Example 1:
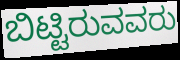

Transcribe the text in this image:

ಬಿಟ್ಟಿರುವವರು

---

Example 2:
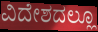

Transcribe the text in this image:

ವಿದೇಶದಲ್ಲೂ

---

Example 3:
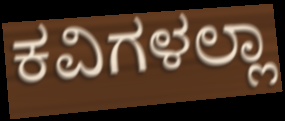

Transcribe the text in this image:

ಕವಿಗಳಲ್ಲಾ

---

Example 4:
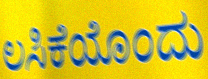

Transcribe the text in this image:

ಲಸಿಕೆಯೊಂದು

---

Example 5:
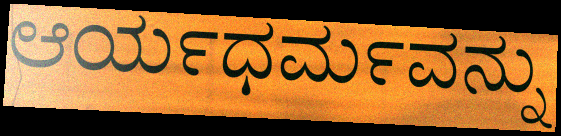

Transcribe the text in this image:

ಆರ್ಯಧರ್ಮವನ್ನು